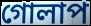
গোলাপ